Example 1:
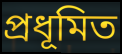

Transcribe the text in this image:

প্রধূমিত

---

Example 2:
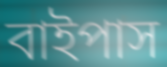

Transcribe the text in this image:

বাইপাস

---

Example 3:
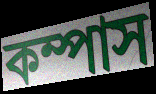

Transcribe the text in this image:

কম্পাস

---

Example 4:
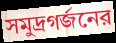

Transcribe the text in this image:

সমুদ্রগর্জনের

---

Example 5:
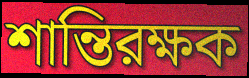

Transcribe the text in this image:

শান্তিরক্ষক